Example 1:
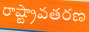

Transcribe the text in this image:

రాష్ట్రావతరణ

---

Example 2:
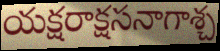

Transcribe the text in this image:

యక్షరాక్షసనాగాశ్చ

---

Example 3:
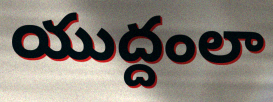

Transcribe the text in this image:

యుద్దంలా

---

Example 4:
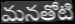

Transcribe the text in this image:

మనతోటి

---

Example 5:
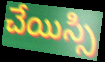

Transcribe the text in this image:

చేయిస్సి